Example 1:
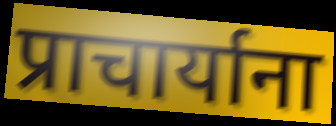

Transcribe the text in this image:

प्राचार्याना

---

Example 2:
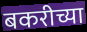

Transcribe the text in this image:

बकरीच्या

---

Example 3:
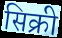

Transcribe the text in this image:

सिक्री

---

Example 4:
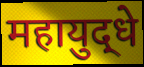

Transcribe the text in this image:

महायुद्धे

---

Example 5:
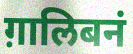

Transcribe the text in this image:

ग़ालिबनं